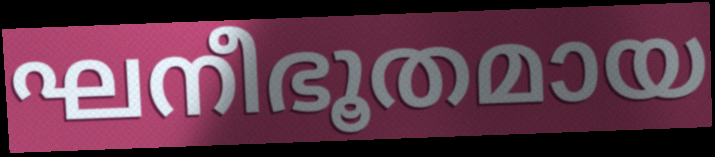
ഘനീഭൂതമായ